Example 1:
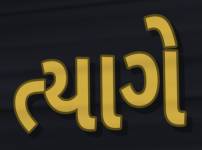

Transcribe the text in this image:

ત્યાગે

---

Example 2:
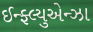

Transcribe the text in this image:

ઈન્ફ્લ્યુએન્ઝા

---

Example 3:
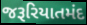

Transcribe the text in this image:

જરૂરિયાતમંદ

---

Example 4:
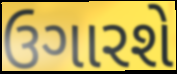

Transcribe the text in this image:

ઉગારશે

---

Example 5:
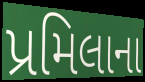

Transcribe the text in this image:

પ્રમિલાના